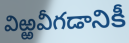
విఱ్ఱవీగడానికీ